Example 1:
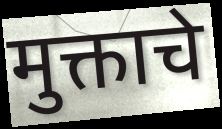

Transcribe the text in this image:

मुक्ताचे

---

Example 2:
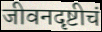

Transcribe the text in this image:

जीवनदृष्टीचं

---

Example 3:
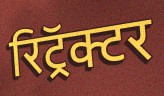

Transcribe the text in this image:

रिट्रॅक्टर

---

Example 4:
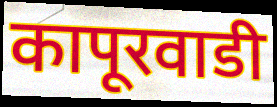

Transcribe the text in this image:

कापूरवाडी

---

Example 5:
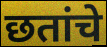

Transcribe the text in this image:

छतांचे